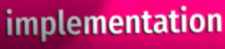
implementation